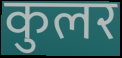
कुलर